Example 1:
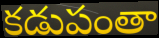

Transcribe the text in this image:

కడుపంతా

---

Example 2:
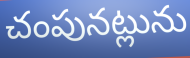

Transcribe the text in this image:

చంపునట్లును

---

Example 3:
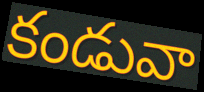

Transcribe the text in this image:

కండువా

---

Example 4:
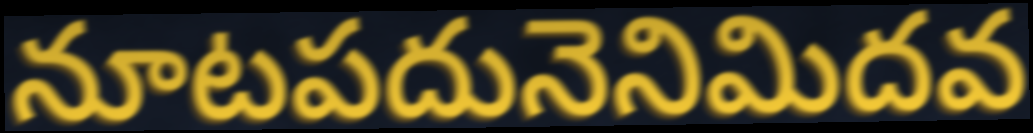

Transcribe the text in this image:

నూటపదునెనిమిదవ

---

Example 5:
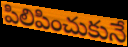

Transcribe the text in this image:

పిలిపించుకునే